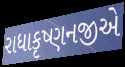
રાધાકૃષ્ણનજીએ